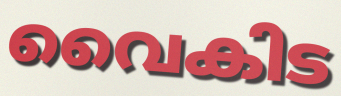
വൈകിട